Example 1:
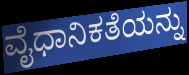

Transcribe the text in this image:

ವೈಧಾನಿಕತೆಯನ್ನು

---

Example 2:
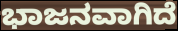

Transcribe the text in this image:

ಭಾಜನವಾಗಿದೆ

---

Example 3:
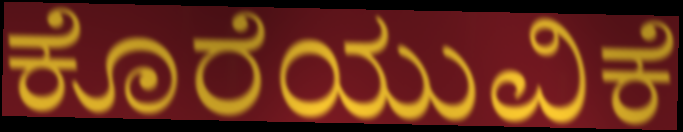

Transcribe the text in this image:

ಕೊರೆಯುವಿಕೆ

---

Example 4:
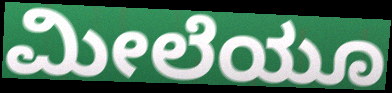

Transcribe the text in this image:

ಮೀಲೆಯೂ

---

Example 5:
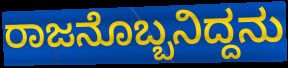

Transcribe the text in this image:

ರಾಜನೊಬ್ಬನಿದ್ದನು